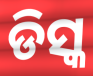
ଡିସ୍କ